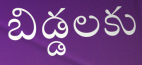
బిడ్డలకు